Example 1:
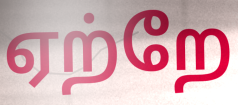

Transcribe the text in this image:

ஏற்றே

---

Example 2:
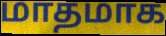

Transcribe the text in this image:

மாதமாக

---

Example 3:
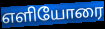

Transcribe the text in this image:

எளியோரை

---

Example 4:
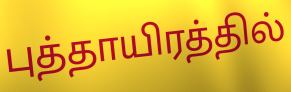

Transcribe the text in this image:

புத்தாயிரத்தில்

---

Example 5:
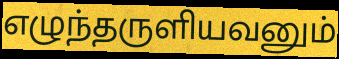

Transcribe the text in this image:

எழுந்தருளியவனும்